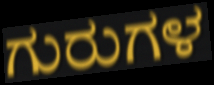
ಗುರುಗಳ